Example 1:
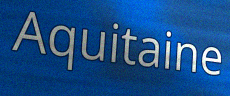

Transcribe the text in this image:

Aquitaine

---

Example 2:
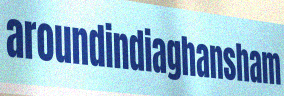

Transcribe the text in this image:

aroundindiaghansham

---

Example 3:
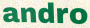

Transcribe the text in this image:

andro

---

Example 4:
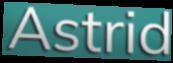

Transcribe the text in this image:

Astrid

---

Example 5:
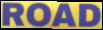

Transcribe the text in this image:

ROAD